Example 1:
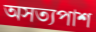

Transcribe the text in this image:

অসত্যপাশ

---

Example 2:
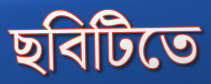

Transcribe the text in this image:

ছবিটিতে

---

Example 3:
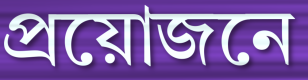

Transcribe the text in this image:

প্রয়োজনে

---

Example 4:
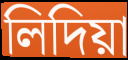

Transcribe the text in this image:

লিদিয়া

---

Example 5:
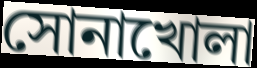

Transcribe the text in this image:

সোনাখোলা